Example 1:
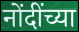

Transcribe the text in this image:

नोंदींच्या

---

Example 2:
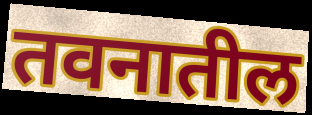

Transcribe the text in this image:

तवनातील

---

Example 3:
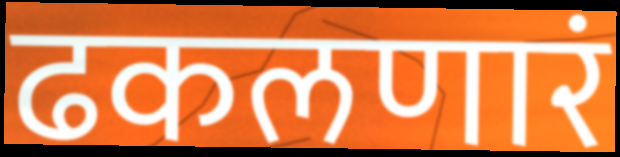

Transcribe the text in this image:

ढकलणारं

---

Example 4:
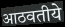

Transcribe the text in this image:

आठवतीये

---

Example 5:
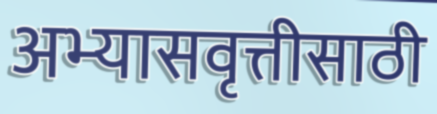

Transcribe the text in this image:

अभ्यासवृत्तीसाठी